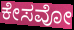
ಕೇಸವೋ